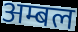
अम्बल